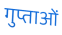
गुप्ताओं